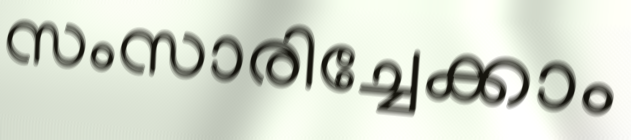
സംസാരിച്ചേക്കാം